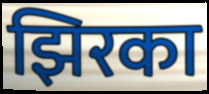
झिरका